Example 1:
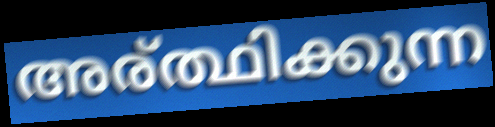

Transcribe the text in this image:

അര്ത്ഥിക്കുന്ന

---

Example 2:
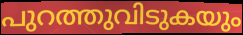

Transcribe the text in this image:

പുറത്തുവിടുകയും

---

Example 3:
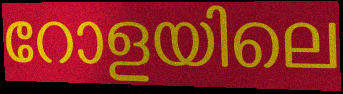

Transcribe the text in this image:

റോളയിലെ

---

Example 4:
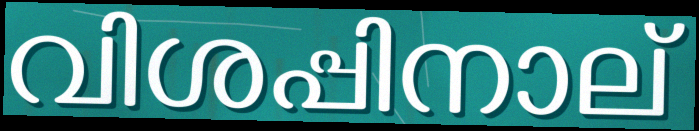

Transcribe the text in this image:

വിശപ്പിനാല്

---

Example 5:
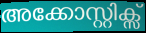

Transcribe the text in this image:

അക്കോസ്റ്റിക്സ്